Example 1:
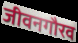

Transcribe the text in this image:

जीवनगौरव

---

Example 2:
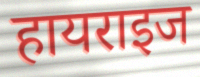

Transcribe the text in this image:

हायराइज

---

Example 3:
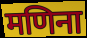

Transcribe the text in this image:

मणिना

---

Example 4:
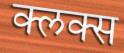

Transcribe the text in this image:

क्लक्स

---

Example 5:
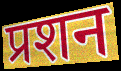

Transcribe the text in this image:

प्रशन